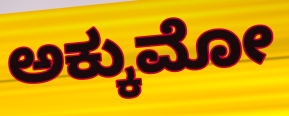
ಅಕ್ಕುಮೋ